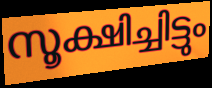
സൂക്ഷിച്ചിട്ടും